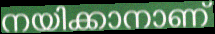
നയിക്കാനാണ്